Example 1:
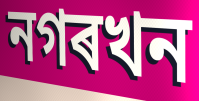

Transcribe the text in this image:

নগৰখন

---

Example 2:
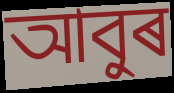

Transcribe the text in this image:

আবুৰ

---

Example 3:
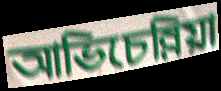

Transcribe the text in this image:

আভিচেন্নিয়া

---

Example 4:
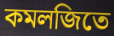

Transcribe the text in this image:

কমলজিতে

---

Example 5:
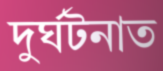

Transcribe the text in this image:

দুৰ্ঘটনাত